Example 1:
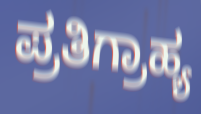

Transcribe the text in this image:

ಪ್ರತಿಗ್ರಾಹ್ಯ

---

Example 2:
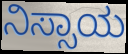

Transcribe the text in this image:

ನಿಸ್ಸಾಯ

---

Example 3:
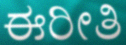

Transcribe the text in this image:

ಈರೀತಿ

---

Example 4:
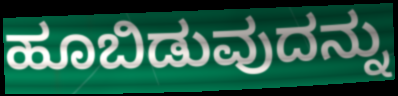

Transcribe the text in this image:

ಹೂಬಿಡುವುದನ್ನು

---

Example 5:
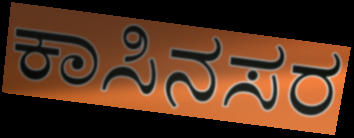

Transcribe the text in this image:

ಕಾಸಿನಸರ